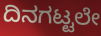
ದಿನಗಟ್ಟಲೇ